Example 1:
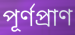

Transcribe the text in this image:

পূর্ণপ্রাণ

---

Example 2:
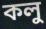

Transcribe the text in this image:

কলু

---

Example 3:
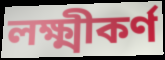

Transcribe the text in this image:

লক্ষ্মীকর্ণ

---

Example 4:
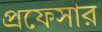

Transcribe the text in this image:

প্রফেসার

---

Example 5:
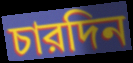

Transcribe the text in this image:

চারদিন